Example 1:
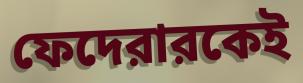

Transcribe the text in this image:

ফেদেরারকেই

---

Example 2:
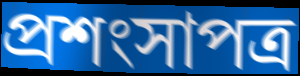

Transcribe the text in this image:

প্রশংসাপত্র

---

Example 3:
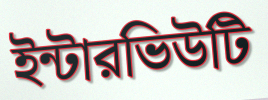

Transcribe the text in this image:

ইন্টারভিউটি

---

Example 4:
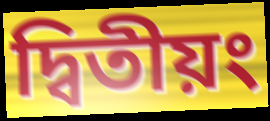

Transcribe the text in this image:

দ্বিতীয়ং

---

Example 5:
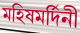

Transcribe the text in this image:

মহিষমর্দিনী